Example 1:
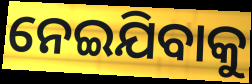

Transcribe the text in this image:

ନେଇଯିବାକୁ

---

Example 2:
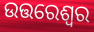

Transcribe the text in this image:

ଉତ୍ତରେଶ୍ୱର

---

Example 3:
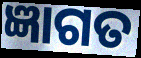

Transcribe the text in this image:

ଜ୍ଞାଗତ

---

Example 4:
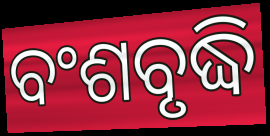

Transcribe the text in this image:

ବଂଶବୃଦ୍ଧି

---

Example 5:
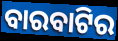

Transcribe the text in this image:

ବାରବାଟିର